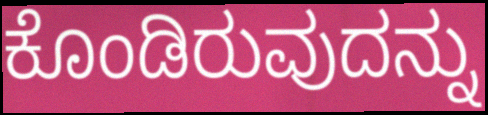
ಕೊಂಡಿರುವುದನ್ನು